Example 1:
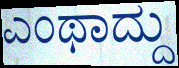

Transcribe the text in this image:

ಎಂಥಾದ್ದು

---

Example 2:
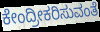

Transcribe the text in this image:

ಕೇಂದ್ರೀಕರಿಸುವಂತೆ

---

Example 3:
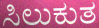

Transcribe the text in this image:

ಸಿಲುಕುತ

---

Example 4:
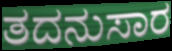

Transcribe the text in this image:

ತದನುಸಾರ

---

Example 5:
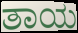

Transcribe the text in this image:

ತಾಯ